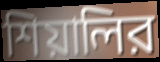
শিয়ালির